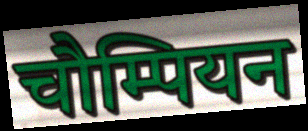
चौम्पियन